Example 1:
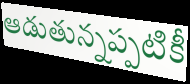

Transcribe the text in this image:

ఆడుతున్నప్పటికీ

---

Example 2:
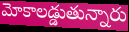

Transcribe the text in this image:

మోకాలడ్డుతున్నారు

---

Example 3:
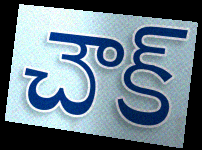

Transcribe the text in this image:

చౌక్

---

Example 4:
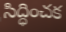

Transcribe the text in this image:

సిద్ధించక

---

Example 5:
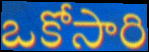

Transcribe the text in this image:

ఒకోసారి